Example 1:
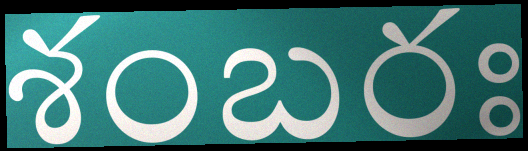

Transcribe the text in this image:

శంబరః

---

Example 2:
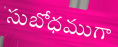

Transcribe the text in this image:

సుబోధముగా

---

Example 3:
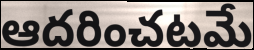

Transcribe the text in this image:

ఆదరించటమే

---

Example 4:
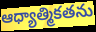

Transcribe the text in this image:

ఆధ్యాత్మికతను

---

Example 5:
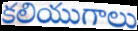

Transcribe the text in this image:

కలియుగాలు